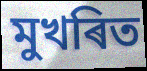
মুখৰিত